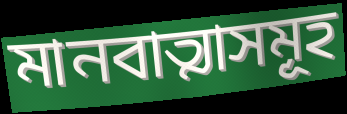
মানবাত্মাসমূহ